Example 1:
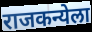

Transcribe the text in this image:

राजकन्येला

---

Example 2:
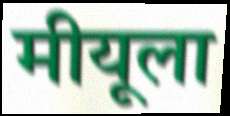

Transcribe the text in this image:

मीयूला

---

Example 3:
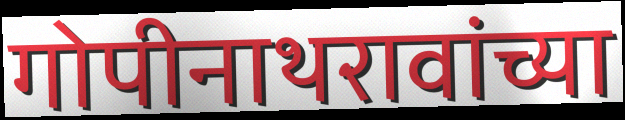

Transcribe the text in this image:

गोपीनाथरावांच्या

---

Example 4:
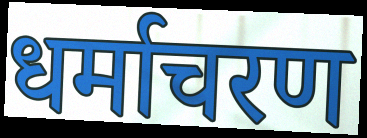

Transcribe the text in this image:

धर्माचरण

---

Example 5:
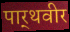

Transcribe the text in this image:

पार्थवीर